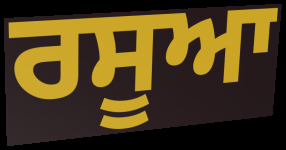
ਰਸੂਆ